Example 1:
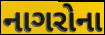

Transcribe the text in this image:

નાગરોના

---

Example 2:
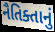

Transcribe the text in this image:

નૈતિક્તાનું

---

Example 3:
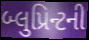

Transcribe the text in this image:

બ્લુપ્રિન્ટની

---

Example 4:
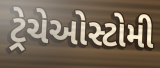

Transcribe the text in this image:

ટ્રેચેઓસ્ટોમી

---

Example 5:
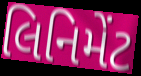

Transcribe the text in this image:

લિનિમેંટ